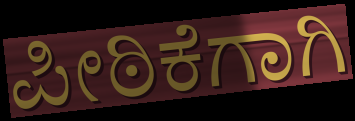
ಪೀಠಿಕೆಗಾಗಿ